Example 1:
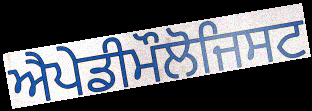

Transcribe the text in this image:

ਐਪੇਡੀਮੌਲੋਜਿਸਟ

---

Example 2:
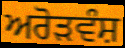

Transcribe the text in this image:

ਅਰੋੜਵੰਸ਼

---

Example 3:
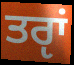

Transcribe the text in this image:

ਤਰੵਾਂ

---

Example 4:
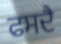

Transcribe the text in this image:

ਫਸਦੈ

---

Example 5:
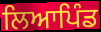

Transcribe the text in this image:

ਲਿਆਪਿੰਡ